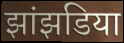
झांझडिया